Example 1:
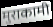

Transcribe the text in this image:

मुराकामी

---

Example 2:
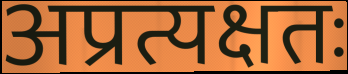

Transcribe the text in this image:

अप्रत्यक्षतः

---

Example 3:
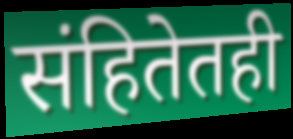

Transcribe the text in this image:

संहितेतही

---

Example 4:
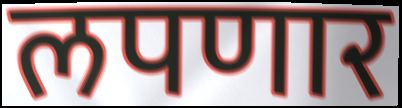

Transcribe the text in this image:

लपणार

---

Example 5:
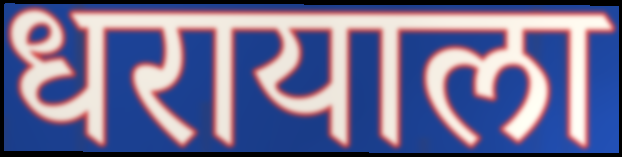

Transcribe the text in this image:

धरायाला